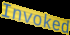
Invoked